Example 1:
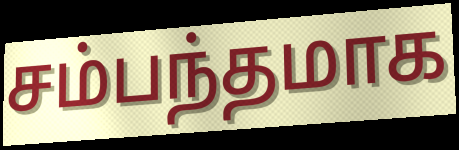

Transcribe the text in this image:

சம்பந்தமாக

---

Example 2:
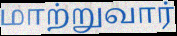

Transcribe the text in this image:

மாற்றுவார்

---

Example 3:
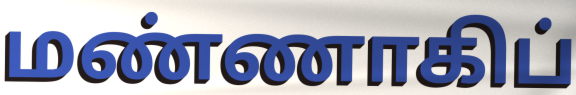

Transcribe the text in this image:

மண்ணாகிப்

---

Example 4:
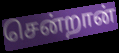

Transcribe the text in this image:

சென்றான்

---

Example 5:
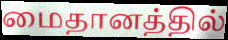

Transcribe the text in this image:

மைதானத்தில்